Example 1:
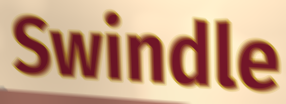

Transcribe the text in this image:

Swindle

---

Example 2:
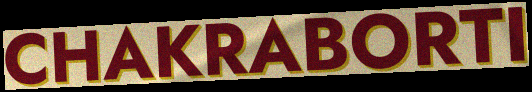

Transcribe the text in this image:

CHAKRABORTI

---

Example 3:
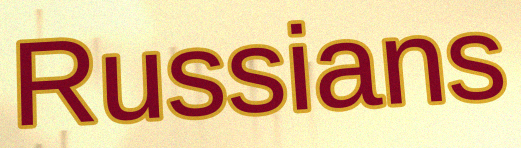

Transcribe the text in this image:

Russians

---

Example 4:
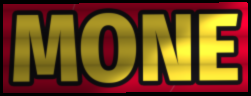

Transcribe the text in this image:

MONE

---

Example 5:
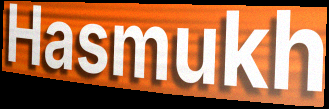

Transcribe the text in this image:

Hasmukh